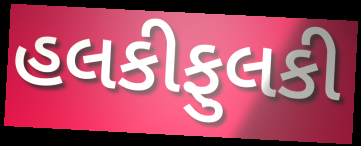
હલકીફુલકી